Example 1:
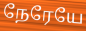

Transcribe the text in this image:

நேரேயே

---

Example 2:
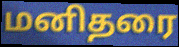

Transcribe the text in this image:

மனிதரை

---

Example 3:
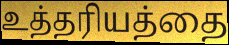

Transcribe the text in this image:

உத்தரியத்தை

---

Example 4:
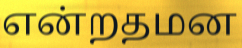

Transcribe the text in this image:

என்றதமன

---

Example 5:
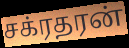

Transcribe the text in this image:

சக்ரதரன்